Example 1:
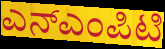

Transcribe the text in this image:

ಎನ್ಎಂಪಿಟಿ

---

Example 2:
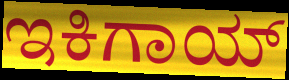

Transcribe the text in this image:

ಇಕಿಗಾಯ್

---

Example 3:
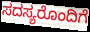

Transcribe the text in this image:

ಸದಸ್ಯರೊಂದಿಗೆ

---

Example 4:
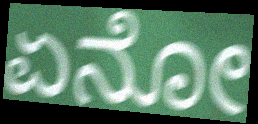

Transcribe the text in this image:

ಏನೋ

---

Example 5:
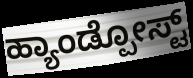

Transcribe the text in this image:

ಹ್ಯಾಂಡ್ಪೋಸ್ಟ್